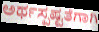
ಅರ್ಥಸ್ಪಷ್ಟತೆಗಾಗಿ